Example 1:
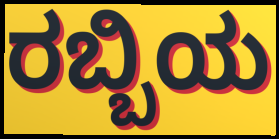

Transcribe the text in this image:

ರಬ್ಬಿಯ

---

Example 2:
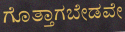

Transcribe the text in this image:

ಗೊತ್ತಾಗಬೇಡವೇ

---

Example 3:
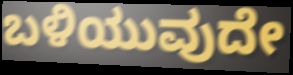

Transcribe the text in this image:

ಬಳಿಯುವುದೇ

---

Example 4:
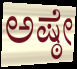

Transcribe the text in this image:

ಅಷ್ಠೇ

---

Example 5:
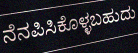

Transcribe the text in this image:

ನೆನಪಿಸಿಕೊಳ್ಳಬಹುದು